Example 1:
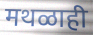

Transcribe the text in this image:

मथळाही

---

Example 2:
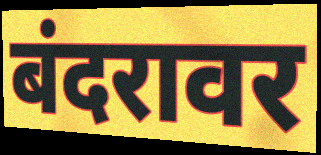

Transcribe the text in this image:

बंदरावर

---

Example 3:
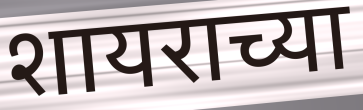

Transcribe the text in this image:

शायराच्या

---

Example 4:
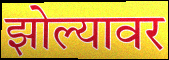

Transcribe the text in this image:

झोल्यावर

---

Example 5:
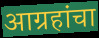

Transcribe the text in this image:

आग्रहांचा